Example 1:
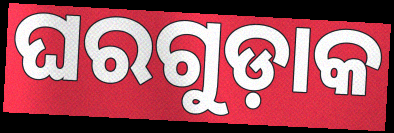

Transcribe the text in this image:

ଘରଗୁଡ଼ାକ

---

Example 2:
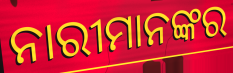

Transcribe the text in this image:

ନାରୀମାନଙ୍କର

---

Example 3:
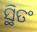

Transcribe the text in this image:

ସ୍ଥିତଂ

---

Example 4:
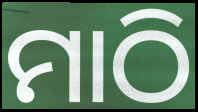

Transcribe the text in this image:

ମାଠି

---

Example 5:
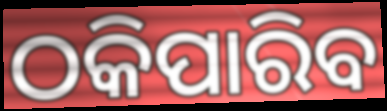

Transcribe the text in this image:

ଠକିପାରିବ